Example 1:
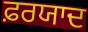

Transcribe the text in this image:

ਫ਼ਰਯਾਦ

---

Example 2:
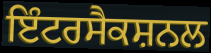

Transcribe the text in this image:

ਇੰਟਰਸੈਕਸ਼ਨਲ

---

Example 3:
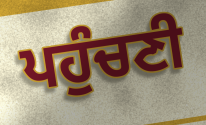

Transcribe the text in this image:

ਪਹੁੰਚਣੀ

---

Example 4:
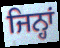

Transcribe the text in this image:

ਜਿਨ੍ਹਾਂ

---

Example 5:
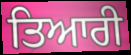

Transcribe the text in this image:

ਤਿਆਰੀ